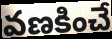
వణకించే